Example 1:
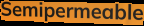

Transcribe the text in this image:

Semipermeable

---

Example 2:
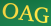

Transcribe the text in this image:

OAG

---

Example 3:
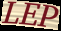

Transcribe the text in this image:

LEP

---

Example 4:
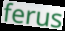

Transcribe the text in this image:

ferus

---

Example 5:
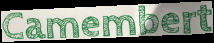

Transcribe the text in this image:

Camembert